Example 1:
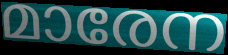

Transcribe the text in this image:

മാരേന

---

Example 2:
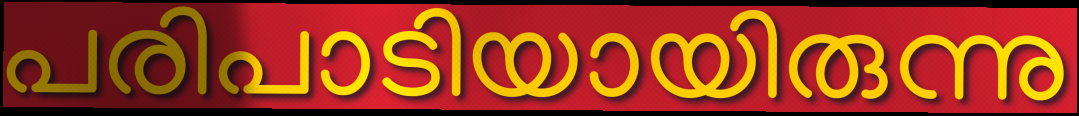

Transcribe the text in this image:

പരിപാടിയായിരുന്നു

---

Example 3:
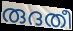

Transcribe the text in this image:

രുദതീ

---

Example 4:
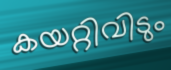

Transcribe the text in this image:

കയറ്റിവിടും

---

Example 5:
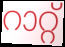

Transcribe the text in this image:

റാറ്റ്